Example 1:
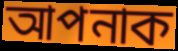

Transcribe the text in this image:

আপনাক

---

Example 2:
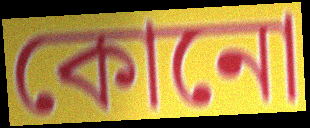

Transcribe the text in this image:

কোনো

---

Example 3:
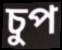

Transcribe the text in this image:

চুপ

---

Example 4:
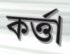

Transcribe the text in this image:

কৰ্ত্তা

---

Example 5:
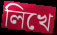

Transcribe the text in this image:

লিখে